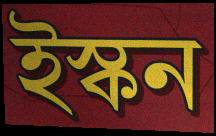
ইস্কন